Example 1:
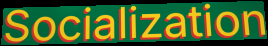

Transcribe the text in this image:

Socialization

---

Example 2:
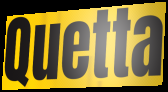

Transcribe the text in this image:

Quetta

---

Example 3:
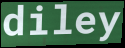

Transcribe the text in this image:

diley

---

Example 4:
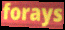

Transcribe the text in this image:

forays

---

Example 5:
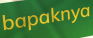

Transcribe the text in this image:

bapaknya